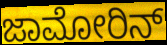
ಜಾಮೋರಿನ್